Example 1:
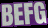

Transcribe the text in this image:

BEFG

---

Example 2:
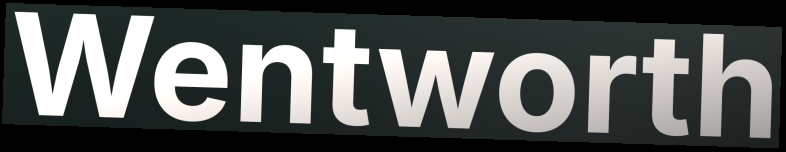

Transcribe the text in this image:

Wentworth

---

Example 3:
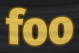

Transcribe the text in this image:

foo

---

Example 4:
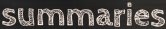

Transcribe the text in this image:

summaries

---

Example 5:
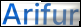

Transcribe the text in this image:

Arifur